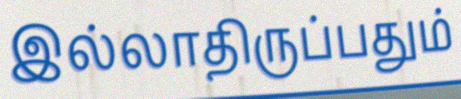
இல்லாதிருப்பதும்